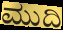
ಮುದಿ